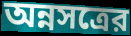
অন্নসত্রের